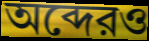
অব্দেরও